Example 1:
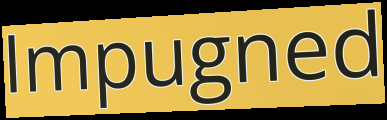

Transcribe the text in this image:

Impugned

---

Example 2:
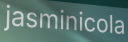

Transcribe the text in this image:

jasminicola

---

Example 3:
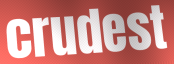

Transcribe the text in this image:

crudest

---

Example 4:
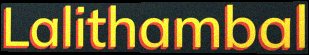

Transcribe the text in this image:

Lalithambal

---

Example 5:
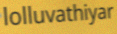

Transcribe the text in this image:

lolluvathiyar